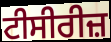
ਟੀਸੀਰੀਜ਼